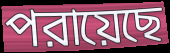
পরায়েছে